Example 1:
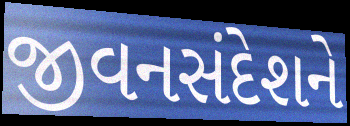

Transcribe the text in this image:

જીવનસંદેશને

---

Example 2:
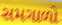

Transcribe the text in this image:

સમગાળો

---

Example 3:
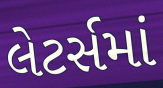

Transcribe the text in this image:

લેટર્સમાં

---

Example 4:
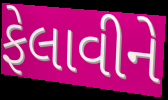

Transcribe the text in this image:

ફેલાવીને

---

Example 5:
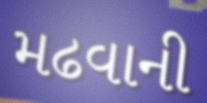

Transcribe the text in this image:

મઢવાની